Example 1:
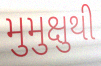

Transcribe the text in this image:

મુમુક્ષુથી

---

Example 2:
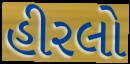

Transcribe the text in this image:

હીરલો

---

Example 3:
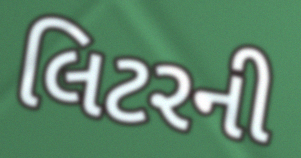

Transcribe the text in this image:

લિટરની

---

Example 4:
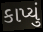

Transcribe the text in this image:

કાપ્યું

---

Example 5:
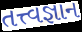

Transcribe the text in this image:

તત્ત્વજ્ઞાન